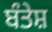
ਬੰਤੇਸ਼